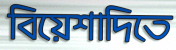
বিয়েশাদিতে